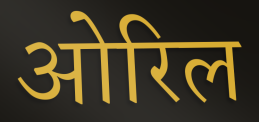
ओरिल